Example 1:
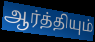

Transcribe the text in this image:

ஆர்த்தியும்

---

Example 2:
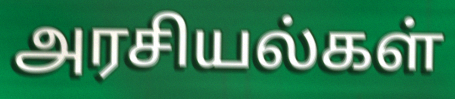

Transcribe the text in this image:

அரசியல்கள்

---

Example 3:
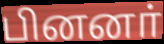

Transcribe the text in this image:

பினனர்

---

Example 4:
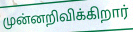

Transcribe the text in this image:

முன்னறிவிக்கிறார்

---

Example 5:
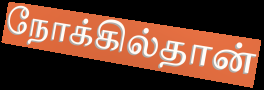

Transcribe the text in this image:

நோக்கில்தான்